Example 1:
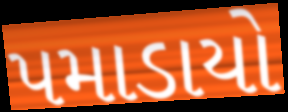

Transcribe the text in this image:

પમાડાયો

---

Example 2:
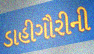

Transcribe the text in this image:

ડાહીગૌરીની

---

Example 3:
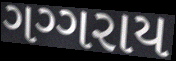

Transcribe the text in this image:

ગગ્ગરાય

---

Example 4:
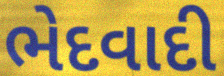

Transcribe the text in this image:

ભેદવાદી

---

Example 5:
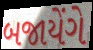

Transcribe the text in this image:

બજાયેંગે